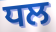
ਧਲ